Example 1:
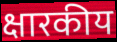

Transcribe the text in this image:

क्षारकीय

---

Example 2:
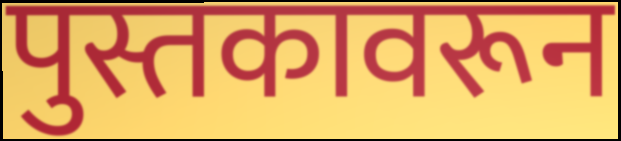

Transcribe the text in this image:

पुस्तकावरून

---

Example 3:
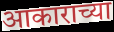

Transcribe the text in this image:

आकाराच्या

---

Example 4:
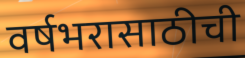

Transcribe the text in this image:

वर्षभरासाठीची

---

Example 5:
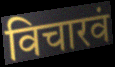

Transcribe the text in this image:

विचारवं